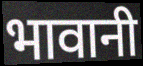
भावानी